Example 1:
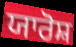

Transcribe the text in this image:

ਯਾਰੋਸ਼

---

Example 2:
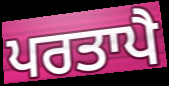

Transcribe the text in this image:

ਪਰਤਾਪੈ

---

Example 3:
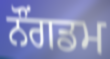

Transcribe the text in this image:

ਨੌਂਗਡਮ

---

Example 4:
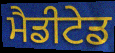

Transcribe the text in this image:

ਮੈਡੀਟੇਡ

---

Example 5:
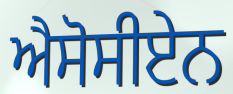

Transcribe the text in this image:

ਐਸੋਸੀਏਨ